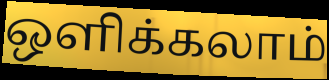
ஒளிக்கலாம்